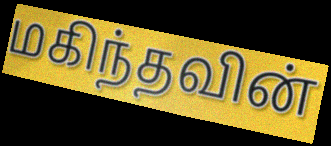
மகிந்தவின்